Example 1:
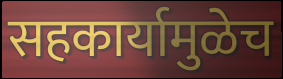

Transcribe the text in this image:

सहकार्यामुळेच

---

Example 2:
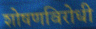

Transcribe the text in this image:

शोषणविरोधी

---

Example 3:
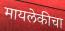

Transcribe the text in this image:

मायलेकीचा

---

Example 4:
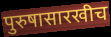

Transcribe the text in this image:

पुरुषासारखीच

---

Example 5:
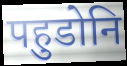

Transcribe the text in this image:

पहुडोनि